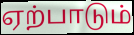
ஏற்பாடும்